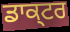
ਡਾਕ੍ਟਰ